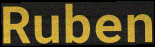
Ruben